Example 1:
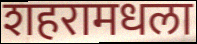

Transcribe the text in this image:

शहरामधला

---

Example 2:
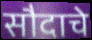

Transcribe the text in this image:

सौदाचे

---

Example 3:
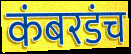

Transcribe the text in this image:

कंबरडंच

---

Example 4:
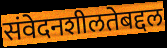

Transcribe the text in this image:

संवेदनशीलतेबद्दल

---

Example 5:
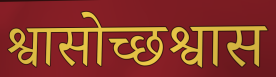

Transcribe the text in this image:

श्वासोच्छश्वास